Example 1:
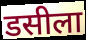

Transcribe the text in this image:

डसीला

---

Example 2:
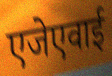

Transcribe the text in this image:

एजेएवाई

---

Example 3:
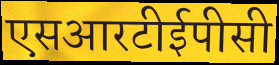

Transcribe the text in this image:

एसआरटीईपीसी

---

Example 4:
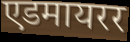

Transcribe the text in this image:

एडमायरर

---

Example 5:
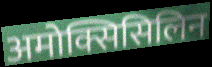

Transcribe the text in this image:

अमोक्सिसिलिन